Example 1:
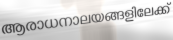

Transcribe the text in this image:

ആരാധനാലയങ്ങളിലേക്ക്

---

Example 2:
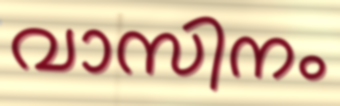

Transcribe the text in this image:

വാസിനം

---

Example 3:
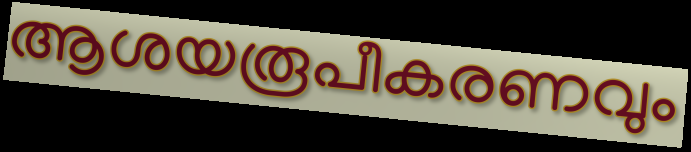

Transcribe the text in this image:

ആശയരൂപീകരണവും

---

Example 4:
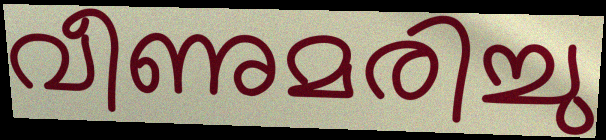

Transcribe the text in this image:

വീണുമരിച്ചു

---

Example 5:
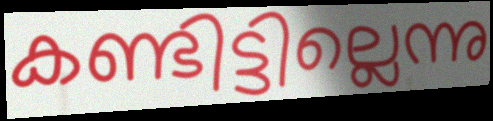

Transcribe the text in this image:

കണ്ടിട്ടില്ലെന്നു